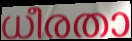
ധീരതാ